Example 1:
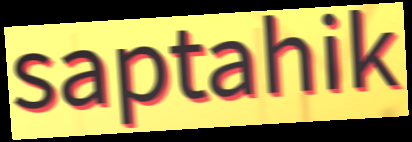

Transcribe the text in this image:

saptahik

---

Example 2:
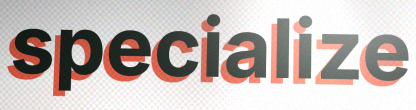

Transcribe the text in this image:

specialize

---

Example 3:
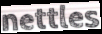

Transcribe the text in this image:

nettles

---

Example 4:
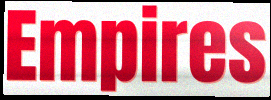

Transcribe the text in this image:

Empires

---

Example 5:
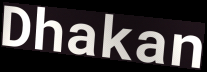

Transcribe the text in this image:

Dhakan